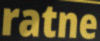
ratne